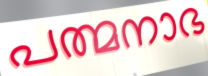
പത്മനാഭ